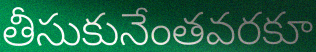
తీసుకునేంతవరకూ